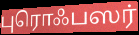
புரொஃபஸர்